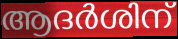
ആദർശിന്